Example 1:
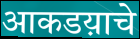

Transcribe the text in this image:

आकडय़ाचे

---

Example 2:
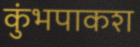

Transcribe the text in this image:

कुंभपाकश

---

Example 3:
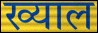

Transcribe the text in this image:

ख्याल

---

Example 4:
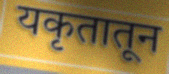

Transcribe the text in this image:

यकृतातून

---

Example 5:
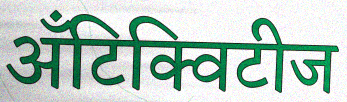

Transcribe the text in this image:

अँटिक्विटीज